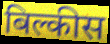
बिल्कीस